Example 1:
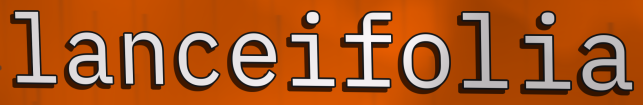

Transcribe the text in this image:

lanceifolia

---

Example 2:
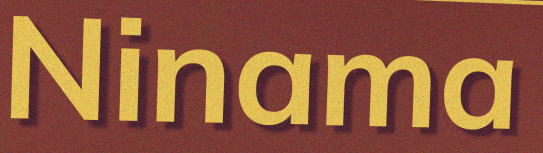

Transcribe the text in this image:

Ninama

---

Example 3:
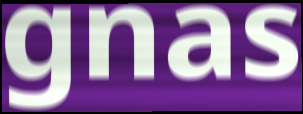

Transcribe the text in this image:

gnas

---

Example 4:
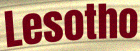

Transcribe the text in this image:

Lesotho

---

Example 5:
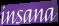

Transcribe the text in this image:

insana